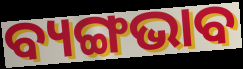
ବ୍ୟଙ୍ଗଭାବ